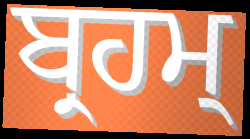
ਬ੍ਰਹਮ੍